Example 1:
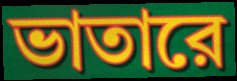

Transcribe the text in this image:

ভাতারে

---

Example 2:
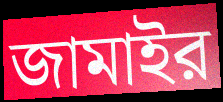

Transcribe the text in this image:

জামাইর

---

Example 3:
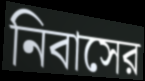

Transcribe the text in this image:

নিবাসের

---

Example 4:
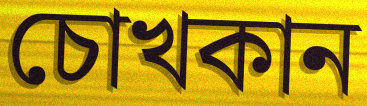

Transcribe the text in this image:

চোখকান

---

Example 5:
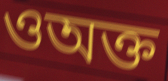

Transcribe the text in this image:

ওঅক্ত